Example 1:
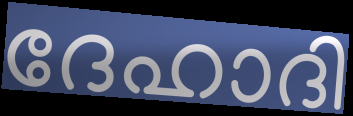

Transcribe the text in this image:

ദേഹാദി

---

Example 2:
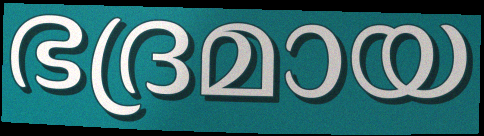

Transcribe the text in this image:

ഭദ്രമായ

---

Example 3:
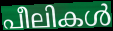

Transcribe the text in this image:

പീലികൾ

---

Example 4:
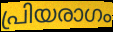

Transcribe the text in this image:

പ്രിയരാഗം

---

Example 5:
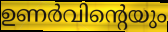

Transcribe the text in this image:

ഉണർവിന്റെയും